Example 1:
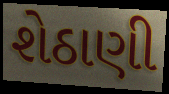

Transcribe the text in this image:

શેઠાણી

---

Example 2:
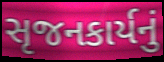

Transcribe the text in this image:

સૃજનકાર્યનું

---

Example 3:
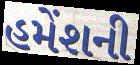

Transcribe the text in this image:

હમેંશની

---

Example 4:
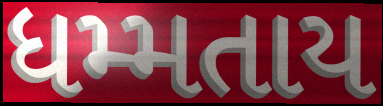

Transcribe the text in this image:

ધમ્મતાય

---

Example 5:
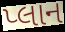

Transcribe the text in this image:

પ્લાન